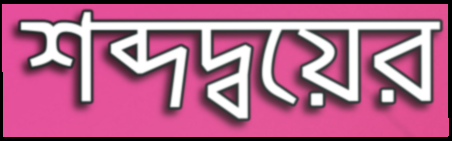
শব্দদ্বয়ের